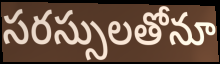
సరస్సులతోనూ